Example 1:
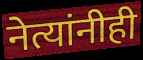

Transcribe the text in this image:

नेत्यांनीही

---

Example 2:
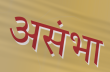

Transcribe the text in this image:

असंभा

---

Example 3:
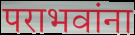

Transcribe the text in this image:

पराभवांना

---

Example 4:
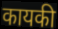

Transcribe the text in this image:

कायकी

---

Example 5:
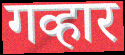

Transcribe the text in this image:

गव्हार